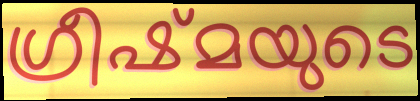
ഗ്രീഷ്മയുടെ